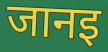
जानइ